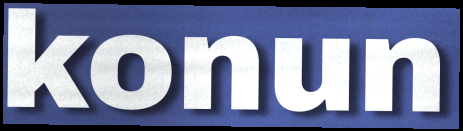
konun